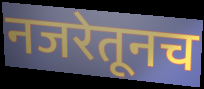
नजरेतूनच